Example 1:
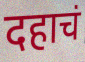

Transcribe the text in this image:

दहाचं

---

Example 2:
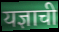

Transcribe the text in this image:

यज्ञाची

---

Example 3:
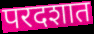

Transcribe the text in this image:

परदशात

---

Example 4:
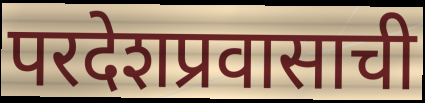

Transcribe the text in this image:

परदेशप्रवासाची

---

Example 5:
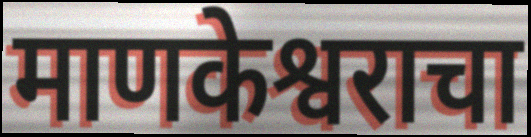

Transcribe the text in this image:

माणकेश्वराचा